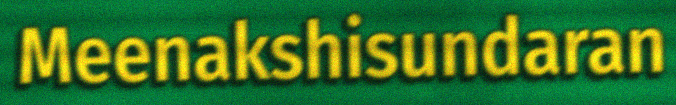
Meenakshisundaran